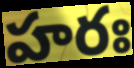
హరః